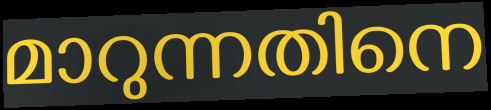
മാറുന്നതിനെ